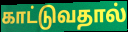
காட்டுவதால்